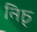
নিচ্